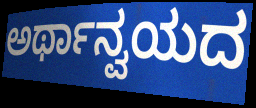
ಅರ್ಥಾನ್ವಯದ